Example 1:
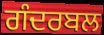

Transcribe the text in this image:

ਗੰਦਰਬਲ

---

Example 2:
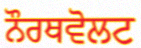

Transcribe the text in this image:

ਨੌਰਥਵੋਲਟ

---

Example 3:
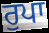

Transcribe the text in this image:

ਰੁਪਾ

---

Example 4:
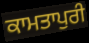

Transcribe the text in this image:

ਕਾਮਤਾਪੁਰੀ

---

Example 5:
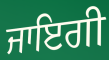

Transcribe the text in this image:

ਜਾਇਗੀ